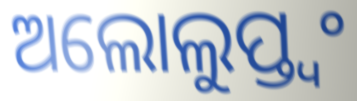
ଅଲୋଲୁପ୍ତ୍ୱଂ